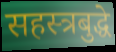
सहस्त्रबुद्धे